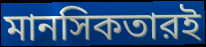
মানসিকতারই